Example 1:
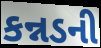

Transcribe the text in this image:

કન્નડની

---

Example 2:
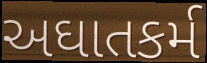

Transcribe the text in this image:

અઘાતકર્મ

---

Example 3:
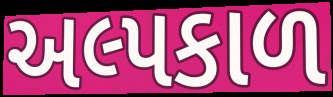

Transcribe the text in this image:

અલ્પકાળ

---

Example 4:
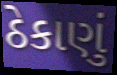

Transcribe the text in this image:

ઠેકાણું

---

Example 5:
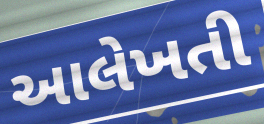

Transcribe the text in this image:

આલેખતી